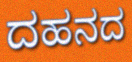
ದಹನದ